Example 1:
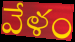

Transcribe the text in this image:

వేళం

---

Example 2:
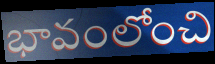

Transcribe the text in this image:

భావంలోంచి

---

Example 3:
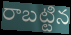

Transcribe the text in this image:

రాబట్టిన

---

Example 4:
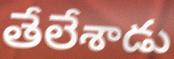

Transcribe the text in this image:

తేలేశాడు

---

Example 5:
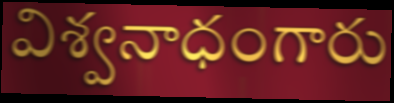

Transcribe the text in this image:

విశ్వనాధంగారు